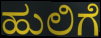
ಹುಲಿಗೆ